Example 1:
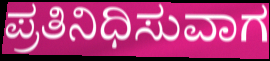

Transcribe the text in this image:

ಪ್ರತಿನಿಧಿಸುವಾಗ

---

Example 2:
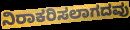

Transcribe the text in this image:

ನಿರಾಕರಿಸಲಾಗದವು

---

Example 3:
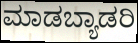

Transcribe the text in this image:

ಮಾಡಬ್ಯಾಡರಿ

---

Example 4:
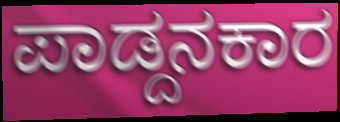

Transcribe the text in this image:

ಪಾಡ್ದನಕಾರ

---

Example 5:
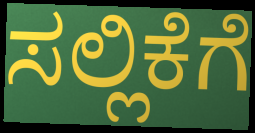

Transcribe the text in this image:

ಸಲ್ಲಿಕೆಗೆ